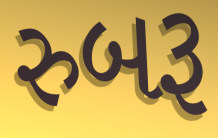
રુબરૂ